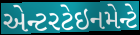
એન્ટરટેઇનમેન્ટે